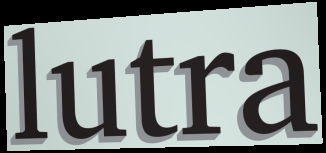
lutra